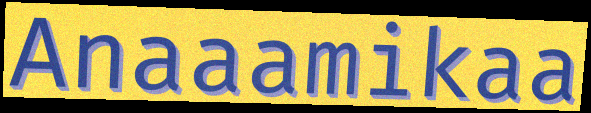
Anaaamikaa